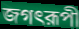
জগৎরূপী